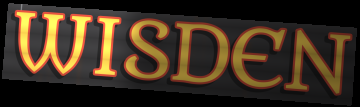
WISDEN